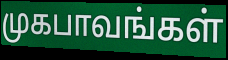
முகபாவங்கள்